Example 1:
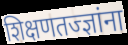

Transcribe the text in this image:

शिक्षणतज्ज्ञांना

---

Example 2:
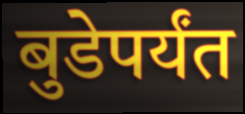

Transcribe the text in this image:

बुडेपर्यंत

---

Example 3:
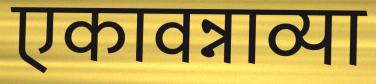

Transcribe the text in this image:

एकावन्नाव्या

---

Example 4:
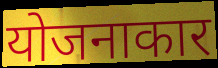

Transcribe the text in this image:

योजनाकार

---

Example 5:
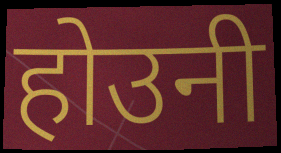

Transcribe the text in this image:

होउनी